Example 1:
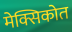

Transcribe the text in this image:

मेक्सिकोत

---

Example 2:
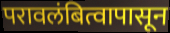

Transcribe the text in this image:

परावलंबित्वापासून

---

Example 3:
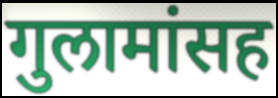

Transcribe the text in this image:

गुलामांसह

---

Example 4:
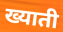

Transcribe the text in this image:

ख्याती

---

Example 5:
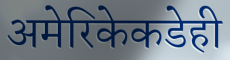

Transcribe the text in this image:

अमेरिकेकडेही